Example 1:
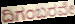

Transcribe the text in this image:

ದಿಗಂಬರವೇ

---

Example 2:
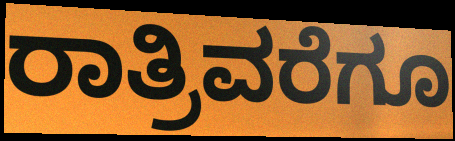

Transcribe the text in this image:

ರಾತ್ರಿವರೆಗೂ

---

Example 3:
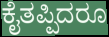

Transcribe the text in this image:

ಕೈತಪ್ಪಿದರೂ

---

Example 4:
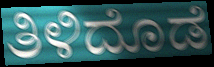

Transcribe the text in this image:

ತಿಳಿದೊಡೆ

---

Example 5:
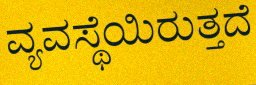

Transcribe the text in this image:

ವ್ಯವಸ್ಥೆಯಿರುತ್ತದೆ